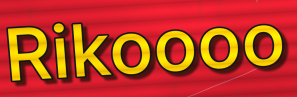
Rikoooo